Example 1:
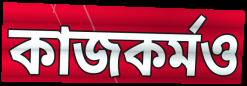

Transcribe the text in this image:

কাজকর্মও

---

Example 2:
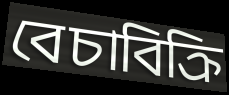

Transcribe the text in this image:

বেচাবিক্রি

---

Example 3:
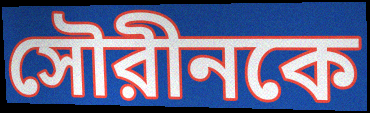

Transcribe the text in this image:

সৌরীনকে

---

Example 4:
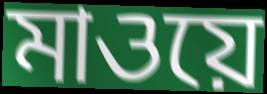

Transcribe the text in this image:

মাওয়ে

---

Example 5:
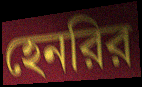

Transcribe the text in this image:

হেনরির